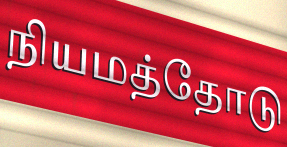
நியமத்தோடு